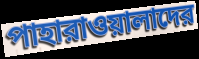
পাহারাওয়ালাদের